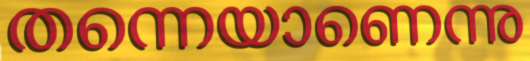
തന്നെയാണെന്നു